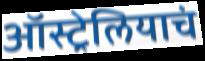
ऑस्ट्रेलियाचं